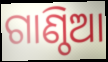
ଗାଣ୍ଠିଆ